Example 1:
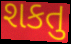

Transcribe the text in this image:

શકતુ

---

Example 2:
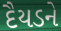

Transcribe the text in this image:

દૈયડને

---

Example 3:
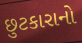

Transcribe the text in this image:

છુટકારાનો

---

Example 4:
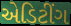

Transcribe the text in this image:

એડિટીંગ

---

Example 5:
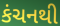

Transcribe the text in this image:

કંચનથી